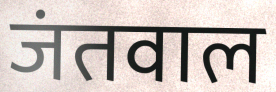
जंतवाल